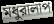
মধুরালাপ